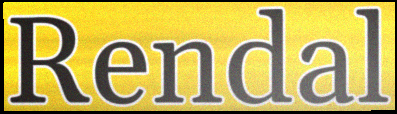
Rendal